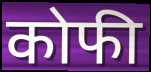
कोफी